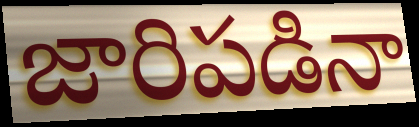
జారిపడినా